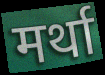
मर्था